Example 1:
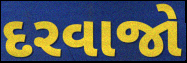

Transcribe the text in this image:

દરવાજો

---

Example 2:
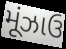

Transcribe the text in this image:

મૂંઝાઉ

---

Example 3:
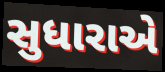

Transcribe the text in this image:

સુધારાએ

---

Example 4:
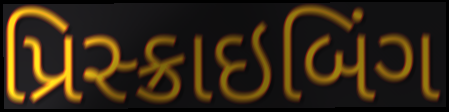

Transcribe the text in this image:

પ્રિસ્ક્રાઇબિંગ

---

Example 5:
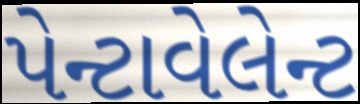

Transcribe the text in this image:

પેન્ટાવેલેન્ટ